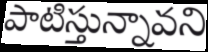
పాటిస్తున్నావని